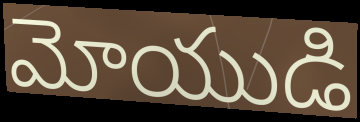
మోయుడి